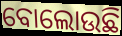
ବୋଲୋଉଛି